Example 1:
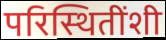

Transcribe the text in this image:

परिस्थितींशी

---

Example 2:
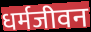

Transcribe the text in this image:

धर्मजीवन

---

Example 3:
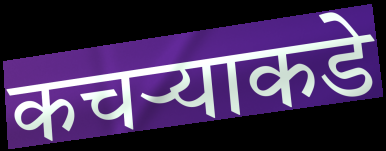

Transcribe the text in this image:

कचऱ्याकडे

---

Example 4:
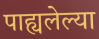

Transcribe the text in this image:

पाह्यलेल्या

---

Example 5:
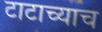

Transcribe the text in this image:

टाटाच्याच